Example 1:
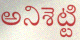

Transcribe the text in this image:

అనిశెట్టి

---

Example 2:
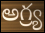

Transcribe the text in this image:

అగ్ర్య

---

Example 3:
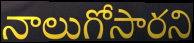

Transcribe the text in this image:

నాలుగోసారని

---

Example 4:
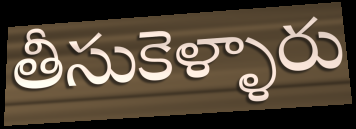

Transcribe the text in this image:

తీసుకెళ్ళారు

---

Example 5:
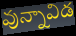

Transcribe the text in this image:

వున్నావిడ